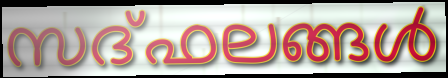
സദ്ഫലങ്ങൾ